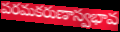
పరమకరుణాస్వభావ